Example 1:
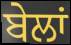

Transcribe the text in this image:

ਬੇਲਾਂ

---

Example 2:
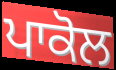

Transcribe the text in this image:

ਪਾਕੋਲ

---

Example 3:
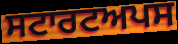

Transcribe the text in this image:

ਸਟਾਰਟਅਪਸ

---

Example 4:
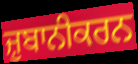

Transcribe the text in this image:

ਜ਼ੁਬਾਨੀਕਰਨ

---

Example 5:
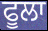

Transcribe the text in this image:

ਫੂਲਾ